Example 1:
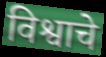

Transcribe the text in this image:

विश्वाचे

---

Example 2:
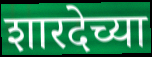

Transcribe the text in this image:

शारदेच्या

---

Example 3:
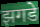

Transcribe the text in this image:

झगडे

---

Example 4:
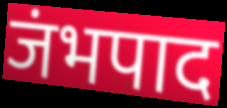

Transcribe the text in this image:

जंभपाद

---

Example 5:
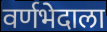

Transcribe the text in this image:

वर्णभेदाला